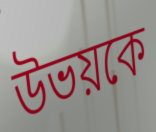
উভয়কে